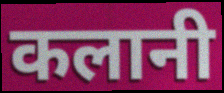
कलानी